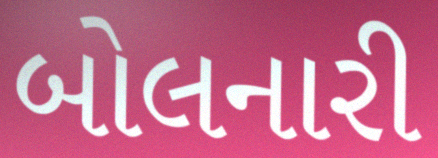
બોલનારી